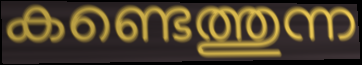
കണ്ടെത്തുന്ന